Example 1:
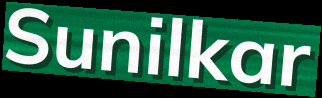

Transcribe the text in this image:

Sunilkar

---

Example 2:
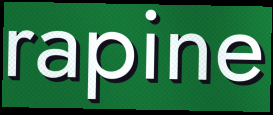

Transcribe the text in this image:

rapine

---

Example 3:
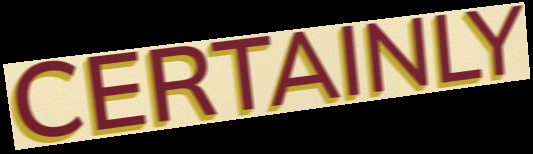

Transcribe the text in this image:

CERTAINLY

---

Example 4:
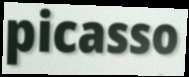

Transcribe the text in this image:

picasso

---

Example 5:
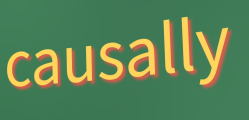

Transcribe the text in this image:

causally